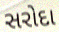
સરોદા